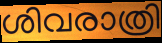
ശിവരാത്രി